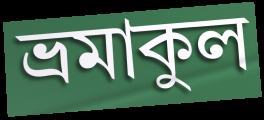
ভ্রমাকুল